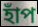
হাঁপ